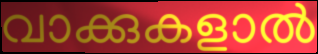
വാക്കുകളാൽ